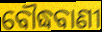
ବୌଦ୍ଧବାଣୀ